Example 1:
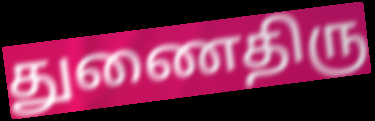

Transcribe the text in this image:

துணைதிரு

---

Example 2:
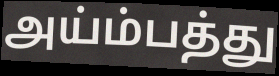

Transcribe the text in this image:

அய்ம்பத்து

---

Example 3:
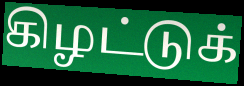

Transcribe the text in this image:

கிழட்டுக்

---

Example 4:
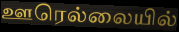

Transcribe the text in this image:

ஊரெல்லையில்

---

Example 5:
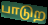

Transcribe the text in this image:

பாடுற